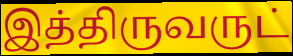
இத்திருவருட்